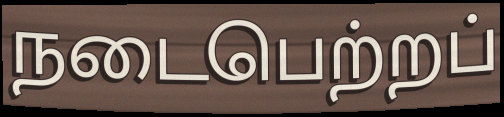
நடைபெற்றப்